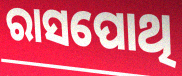
ରାସପୋଥି